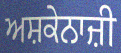
ਅਸ਼ਕੇਨਾਜ਼ੀ